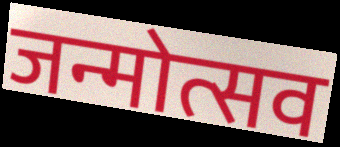
जन्मोत्सव